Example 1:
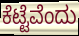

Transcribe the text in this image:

ಕೆಟ್ಟೆವೆಂದು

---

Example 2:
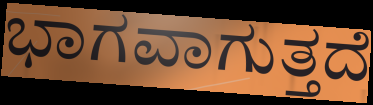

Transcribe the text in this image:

ಭಾಗವಾಗುತ್ತದೆ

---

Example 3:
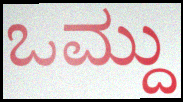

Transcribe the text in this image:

ಒಮ್ದು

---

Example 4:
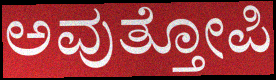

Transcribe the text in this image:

ಅವುತ್ತೋಪಿ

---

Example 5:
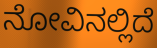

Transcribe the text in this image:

ನೋವಿನಲ್ಲಿದೆ